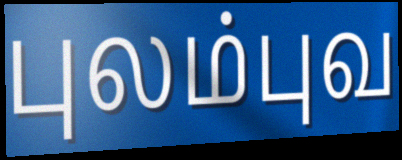
புலம்புவ